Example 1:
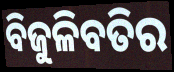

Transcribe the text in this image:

ବିଜୁଳିବତିର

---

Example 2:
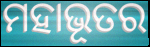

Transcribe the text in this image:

ମହାଭୂତର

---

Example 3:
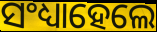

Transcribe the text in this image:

ସଂଧ୍ୟାହେଲେ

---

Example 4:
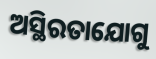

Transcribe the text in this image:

ଅସ୍ଥିରତାଯୋଗୁ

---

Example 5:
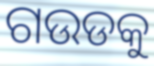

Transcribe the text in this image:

ଗଉଡକୁ